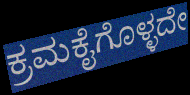
ಕ್ರಮಕೈಗೊಳ್ಳದೇ